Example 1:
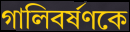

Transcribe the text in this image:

গালিবর্ষণকে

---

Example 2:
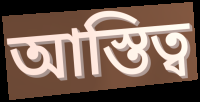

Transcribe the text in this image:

আস্তিত্ব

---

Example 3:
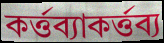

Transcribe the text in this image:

কর্ত্তব্যাকর্ত্তব্য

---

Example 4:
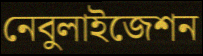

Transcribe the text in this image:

নেবুলাইজেশন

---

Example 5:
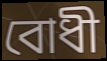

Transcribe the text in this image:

বোধী